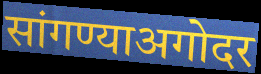
सांगण्याअगोदर